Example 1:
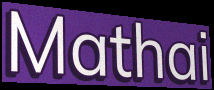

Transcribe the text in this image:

Mathai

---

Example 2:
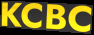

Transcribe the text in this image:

KCBC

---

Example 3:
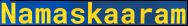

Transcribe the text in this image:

Namaskaaram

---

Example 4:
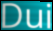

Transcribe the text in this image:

Dui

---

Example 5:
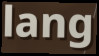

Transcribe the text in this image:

lang